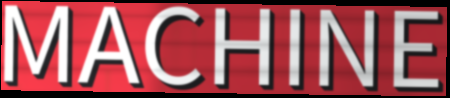
MACHINE